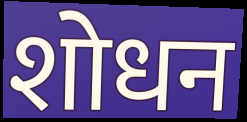
शोधन